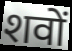
शवों